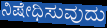
ನಿಷೇಧಿಸುವುದು